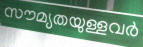
സൗമ്യതയുള്ളവർ